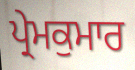
ਪ੍ਰੇਮਕੁਮਾਰ